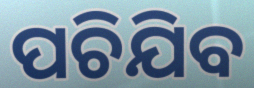
ପଚିଯିବ